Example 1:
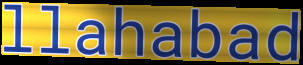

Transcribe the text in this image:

llahabad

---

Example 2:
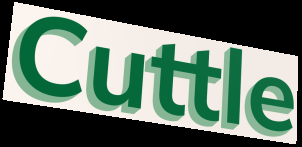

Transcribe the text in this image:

Cuttle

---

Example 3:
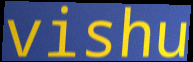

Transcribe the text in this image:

vishu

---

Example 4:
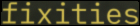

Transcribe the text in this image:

fixities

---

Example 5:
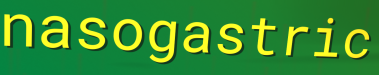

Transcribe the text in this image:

nasogastric